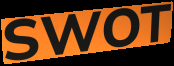
SWOT